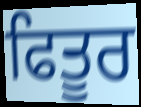
ਫਿਤੂਰ